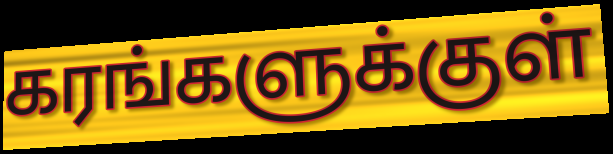
கரங்களுக்குள்